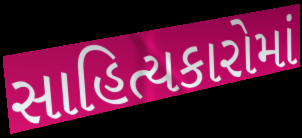
સાહિત્યકારોમાં